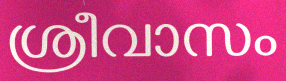
ശ്രീവാസം